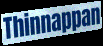
Thinnappan